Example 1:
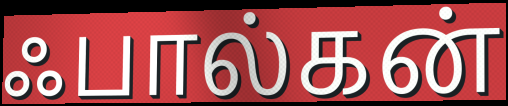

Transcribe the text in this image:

ஃபால்கன்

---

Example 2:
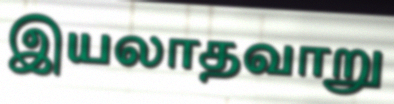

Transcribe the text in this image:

இயலாதவாறு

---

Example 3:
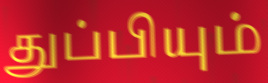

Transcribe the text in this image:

துப்பியும்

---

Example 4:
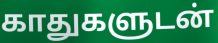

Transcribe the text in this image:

காதுகளுடன்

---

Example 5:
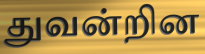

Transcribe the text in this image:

துவன்றின